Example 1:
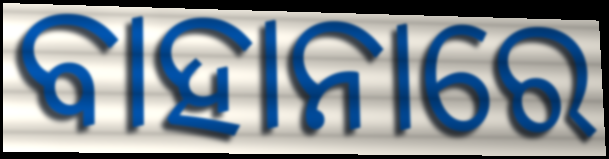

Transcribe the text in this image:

ବାହାନାରେ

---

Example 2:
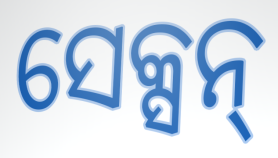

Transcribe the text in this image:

ସେକ୍ସନ୍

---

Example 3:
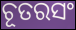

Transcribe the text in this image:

ଚୂତରସଂ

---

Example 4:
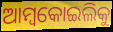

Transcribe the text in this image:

ଆମ୍ବକୋଇଲିକୁ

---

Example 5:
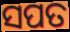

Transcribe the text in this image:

ସପତ